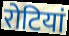
रोटियां